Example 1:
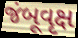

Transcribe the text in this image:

જંબૂવૃક્ષ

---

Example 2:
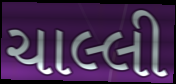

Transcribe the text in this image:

ચાલ્લી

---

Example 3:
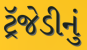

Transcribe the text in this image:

ટ્રૅજેડીનું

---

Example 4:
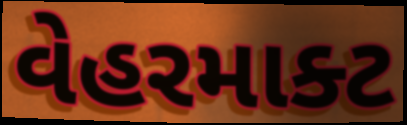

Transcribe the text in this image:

વેહરમાક્ટ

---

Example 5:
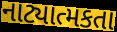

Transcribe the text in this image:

નાટ્યાત્મકતા